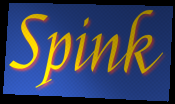
Spink